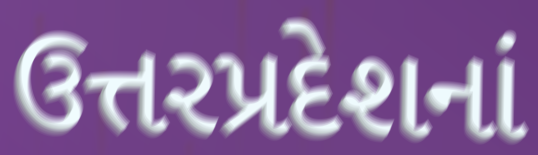
ઉત્તરપ્રદેશનાં